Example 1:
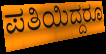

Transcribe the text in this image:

ಪತಿಯಿದ್ದರೂ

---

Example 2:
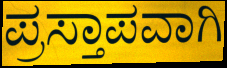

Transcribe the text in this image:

ಪ್ರಸ್ತಾಪವಾಗಿ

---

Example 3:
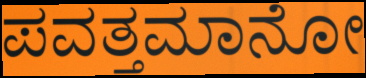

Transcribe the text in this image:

ಪವತ್ತಮಾನೋ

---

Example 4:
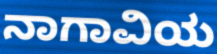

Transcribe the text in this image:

ನಾಗಾವಿಯ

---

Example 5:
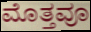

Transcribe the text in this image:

ಮೊತ್ತವೂ